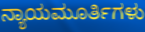
ನ್ಯಾಯಮೂರ್ತಿಗಳು